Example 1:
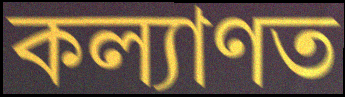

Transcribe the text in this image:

কল্যাণত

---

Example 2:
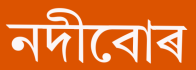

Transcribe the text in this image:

নদীবোৰ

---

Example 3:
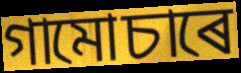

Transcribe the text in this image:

গামোচাৰে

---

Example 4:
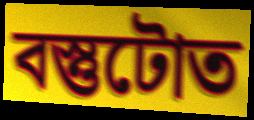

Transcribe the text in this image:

বস্তুটোত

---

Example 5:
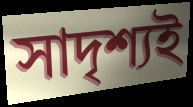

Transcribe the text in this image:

সাদৃশ্যই